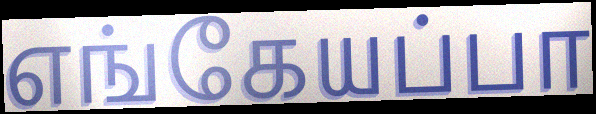
எங்கேயப்பா